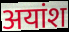
अयांश